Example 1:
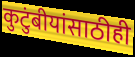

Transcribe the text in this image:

कुटुंबीयांसाठीही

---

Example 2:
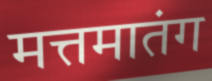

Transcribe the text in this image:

मत्तमातंग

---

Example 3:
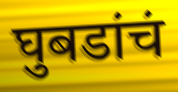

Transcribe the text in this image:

घुबडांचं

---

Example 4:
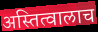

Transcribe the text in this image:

अस्तित्वालाच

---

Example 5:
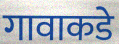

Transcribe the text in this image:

गावाकडे